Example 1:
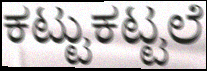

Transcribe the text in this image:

ಕಟ್ಟುಕಟ್ಟಲೆ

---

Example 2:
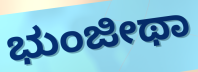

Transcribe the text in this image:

ಭುಂಜೀಥಾ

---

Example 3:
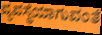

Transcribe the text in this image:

ವ್ಯವಸ್ಥೆಯಾಗುವಂತೆ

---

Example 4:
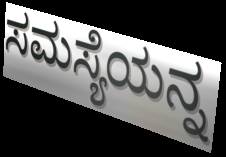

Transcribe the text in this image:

ಸಮಸ್ಯೆಯನ್ನ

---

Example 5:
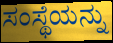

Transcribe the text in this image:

ಸಂಸ್ಥೆಯನ್ನು